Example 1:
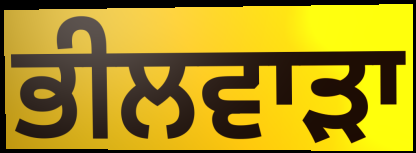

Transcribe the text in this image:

ਭੀਲਵਾੜਾ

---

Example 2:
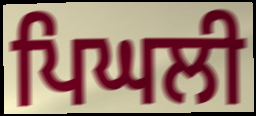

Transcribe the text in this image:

ਪਿਘਲੀ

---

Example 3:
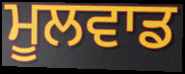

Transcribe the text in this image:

ਮੂਲਵਾਡ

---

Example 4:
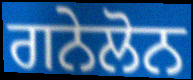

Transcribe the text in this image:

ਗਨੇਲੋਨ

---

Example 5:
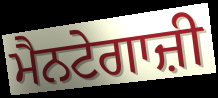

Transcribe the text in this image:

ਮੈਨਟੇਗਾਜ਼ੀ